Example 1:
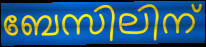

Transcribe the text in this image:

ബേസിലിന്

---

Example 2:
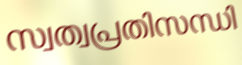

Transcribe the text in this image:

സ്വത്വപ്രതിസന്ധി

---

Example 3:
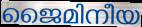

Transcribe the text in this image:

ജൈമിനീയ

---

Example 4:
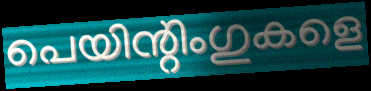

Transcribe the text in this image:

പെയിന്റിംഗുകളെ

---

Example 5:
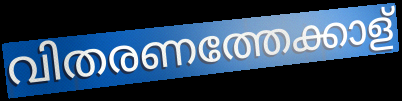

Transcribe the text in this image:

വിതരണത്തേക്കാള്